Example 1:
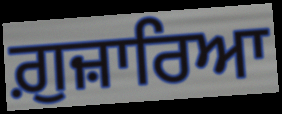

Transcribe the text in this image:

ਗ਼ੁਜ਼ਾਰਿਆ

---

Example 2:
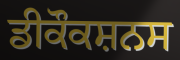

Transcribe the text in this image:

ਡੀਕੌਕਸ਼ਨਸ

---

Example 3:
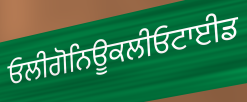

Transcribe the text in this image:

ਓਲੀਗੋਨਿਊਕਲੀਓਟਾਈਡ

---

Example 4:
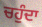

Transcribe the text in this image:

ਚਹੁੰਦਾ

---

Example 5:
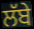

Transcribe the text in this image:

ਲੱਬੇ